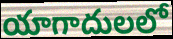
యాగాదులలో